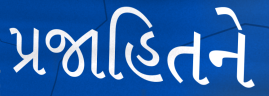
પ્રજાહિતને